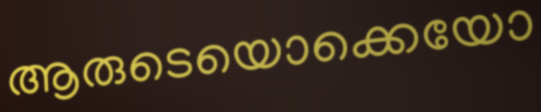
ആരുടെയൊക്കെയോ